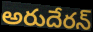
అరుదేరన్